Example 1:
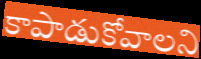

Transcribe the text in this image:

కాపాడుకోవాలని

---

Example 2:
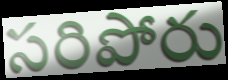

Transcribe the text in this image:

సరిపోరు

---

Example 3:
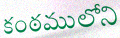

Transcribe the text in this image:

కంఠములోని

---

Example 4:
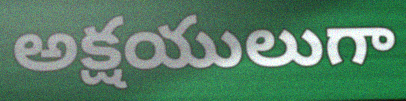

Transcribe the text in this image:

అక్షయులుగా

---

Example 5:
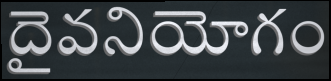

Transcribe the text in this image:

దైవనియోగం